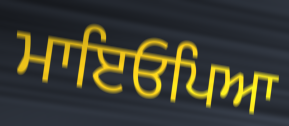
ਮਾਇਓਪਿਆ